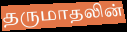
தருமாதலின்